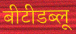
बीटीडब्लू